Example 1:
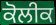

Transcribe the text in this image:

ਕੋਲੀਕ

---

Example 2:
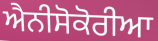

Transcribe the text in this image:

ਐਨੀਸੋਕੋਰੀਆ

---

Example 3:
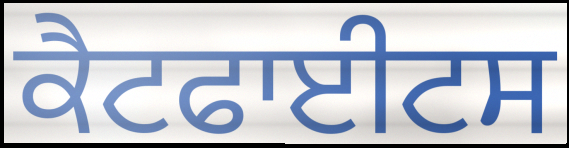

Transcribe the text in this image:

ਕੈਟਫਾਈਟਸ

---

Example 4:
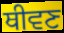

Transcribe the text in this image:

ਥੀਵਣ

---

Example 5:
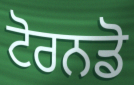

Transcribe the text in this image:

ਟੋਰਨਡੋ